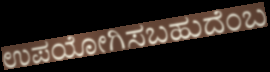
ಉಪಯೋಗಿಸಬಹುದೆಂಬ